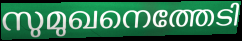
സുമുഖനെത്തേടി